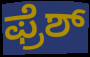
ಫ್ರೆಶ್